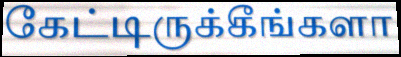
கேட்டிருக்கீங்களா